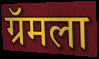
ग्रॅमला